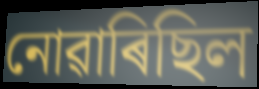
নোৱাৰিছিল